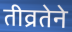
तीव्रतेने